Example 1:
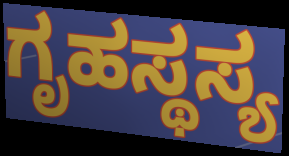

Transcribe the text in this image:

ಗೃಹಸ್ಥಸ್ಯ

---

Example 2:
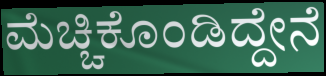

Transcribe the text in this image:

ಮೆಚ್ಚಿಕೊಂಡಿದ್ದೇನೆ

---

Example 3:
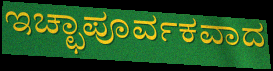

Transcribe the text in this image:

ಇಚ್ಛಾಪೂರ್ವಕವಾದ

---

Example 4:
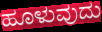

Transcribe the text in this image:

ಹೂಳುವುದು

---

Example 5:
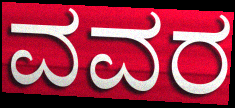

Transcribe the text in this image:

ವವರ